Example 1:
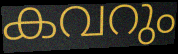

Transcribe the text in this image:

കവറും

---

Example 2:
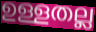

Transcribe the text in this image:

ഉള്ളതല്ല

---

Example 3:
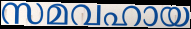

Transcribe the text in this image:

സമവഹായ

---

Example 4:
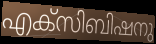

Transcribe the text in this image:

എക്സിബിഷനു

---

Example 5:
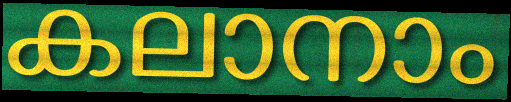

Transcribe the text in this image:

കലാനാം